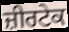
ਜ਼ੀਰਟੇਕ